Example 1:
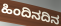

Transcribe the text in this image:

ಹಿಂದಿನದಿನ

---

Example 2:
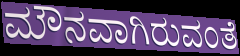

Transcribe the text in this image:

ಮೌನವಾಗಿರುವಂತೆ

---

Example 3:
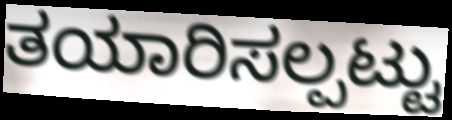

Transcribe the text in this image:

ತಯಾರಿಸಲ್ಪಟ್ಟು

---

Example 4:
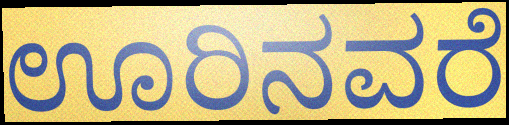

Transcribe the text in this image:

ಊರಿನವರೆ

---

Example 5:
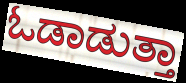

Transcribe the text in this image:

ಓಡಾಡುತ್ತಾ